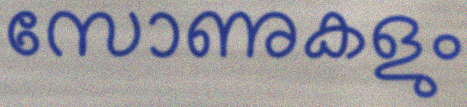
സോണുകളും